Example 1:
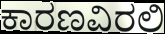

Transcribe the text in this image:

ಕಾರಣವಿರಲಿ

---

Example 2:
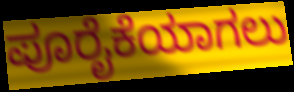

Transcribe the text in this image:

ಪೂರೈಕೆಯಾಗಲು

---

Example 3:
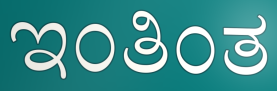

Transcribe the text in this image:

ಇಂತಿಂತ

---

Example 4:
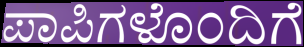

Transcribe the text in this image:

ಪಾಪಿಗಳೊಂದಿಗೆ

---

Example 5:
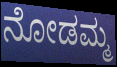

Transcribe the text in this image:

ನೋಡಮ್ಮ